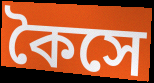
কৈসে